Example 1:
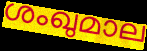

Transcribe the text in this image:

ശംഖുമാല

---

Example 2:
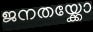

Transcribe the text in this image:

ജനതയ്ക്കോ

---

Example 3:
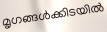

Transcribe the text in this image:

മൃഗങ്ങൾക്കിടയിൽ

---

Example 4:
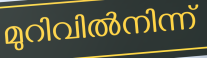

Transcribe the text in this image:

മുറിവിൽനിന്ന്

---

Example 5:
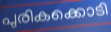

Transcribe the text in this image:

പുരികക്കൊടി